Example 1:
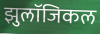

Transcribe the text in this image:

झुलॉजिकल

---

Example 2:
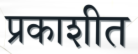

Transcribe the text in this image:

प्रकाशीत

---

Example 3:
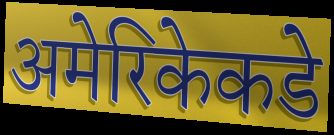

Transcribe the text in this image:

अमेरिकेकडे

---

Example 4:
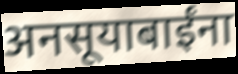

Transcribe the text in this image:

अनसूयाबाईंना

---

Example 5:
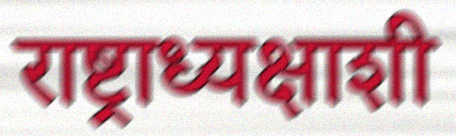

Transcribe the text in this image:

राष्ट्राध्यक्षाशी